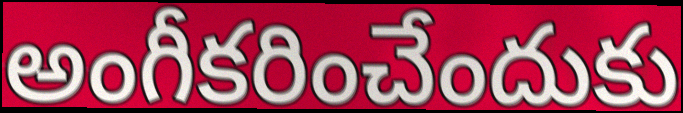
అంగీకరించేందుకు